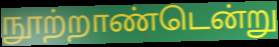
நூற்றாண்டென்று